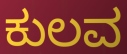
ಕುಲವ